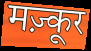
मज़्कूर